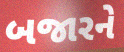
બજારને